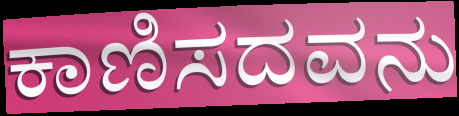
ಕಾಣಿಸದವನು